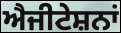
ਐਜੀਟੇਸ਼ਨਾਂ